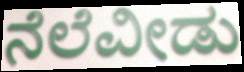
ನೆಲೆವೀಡು